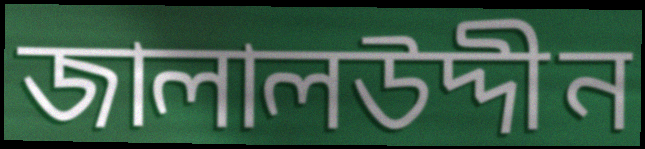
জালালউদ্দীন